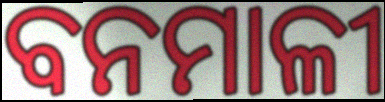
ବନମାଳୀ